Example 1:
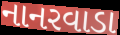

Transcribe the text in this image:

નાનરવાડા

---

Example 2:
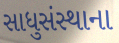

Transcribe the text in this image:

સાધુસંસ્થાના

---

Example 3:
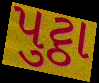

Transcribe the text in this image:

પુટ્ઠા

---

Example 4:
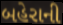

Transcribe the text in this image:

બહેરાની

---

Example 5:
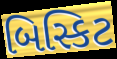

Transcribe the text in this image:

બિસ્કિટ